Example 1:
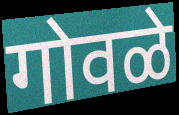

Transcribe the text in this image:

गोवळे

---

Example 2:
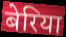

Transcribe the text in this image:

बेरिया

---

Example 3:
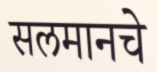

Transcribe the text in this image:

सलमानचे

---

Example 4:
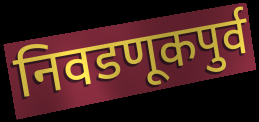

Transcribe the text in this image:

निवडणूकपुर्व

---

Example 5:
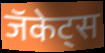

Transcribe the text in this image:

जॅकेट्स